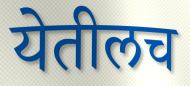
येतीलच